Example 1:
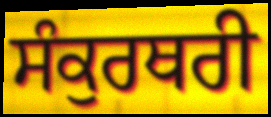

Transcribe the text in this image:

ਸੰਕੁਰਥਰੀ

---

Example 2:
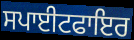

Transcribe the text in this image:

ਸਪਾਈਟਫਾਇਰ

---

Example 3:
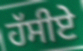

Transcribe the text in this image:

ਹੱਸੀਏ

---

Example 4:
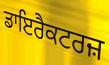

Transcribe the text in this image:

ਡਾਇਰੈਕਟਰਜ਼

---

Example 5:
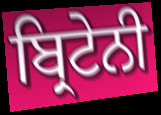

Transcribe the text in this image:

ਬ੍ਰਿਟੇਨੀ